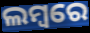
ଲମ୍ବରେ